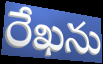
రేఖను